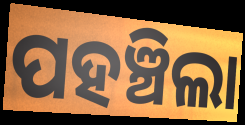
ପହଞ୍ଚିଲା